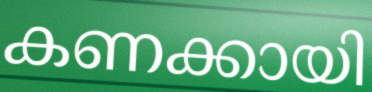
കണക്കായി